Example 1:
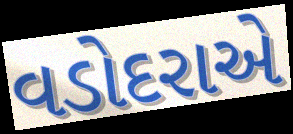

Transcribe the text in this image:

વડોદરાએ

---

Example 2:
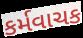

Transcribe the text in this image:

કર્મવાચક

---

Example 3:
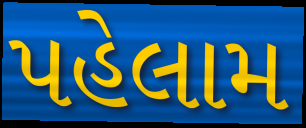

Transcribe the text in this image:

પહેલામ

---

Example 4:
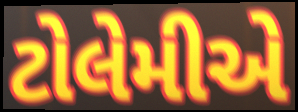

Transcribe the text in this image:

ટોલેમીએ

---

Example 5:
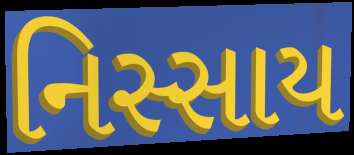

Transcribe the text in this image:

નિસ્સાય